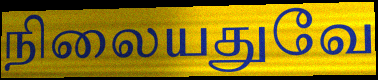
நிலையதுவே